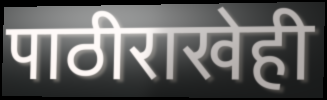
पाठीराखेही